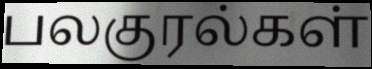
பலகுரல்கள்